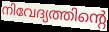
നിവേദ്യത്തിന്റെ